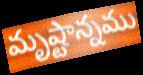
మృష్టాన్నము